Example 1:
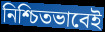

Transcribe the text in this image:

নিশ্চিতভাবেই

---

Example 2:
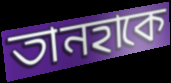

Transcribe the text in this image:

তানহাকে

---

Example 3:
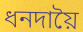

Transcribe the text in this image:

ধনদায়ৈ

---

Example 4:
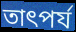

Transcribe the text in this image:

তাৎপর্য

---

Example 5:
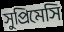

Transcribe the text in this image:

সুপ্রিমেসি